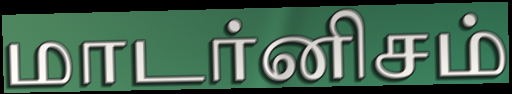
மாடர்னிசம்